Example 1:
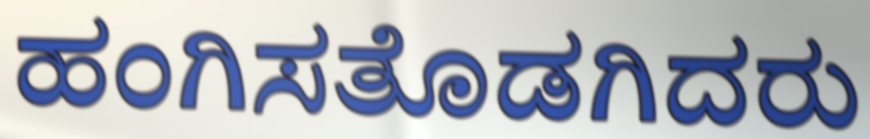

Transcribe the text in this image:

ಹಂಗಿಸತೊಡಗಿದರು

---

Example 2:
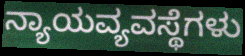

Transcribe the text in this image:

ನ್ಯಾಯವ್ಯವಸ್ಥೆಗಳು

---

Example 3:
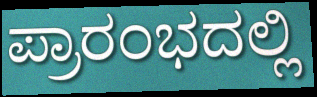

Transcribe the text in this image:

ಪ್ರಾರಂಭದಲ್ಲಿ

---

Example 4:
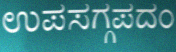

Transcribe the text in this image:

ಉಪಸಗ್ಗಪದಂ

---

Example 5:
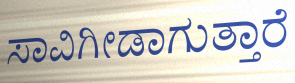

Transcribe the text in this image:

ಸಾವಿಗೀಡಾಗುತ್ತಾರೆ